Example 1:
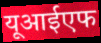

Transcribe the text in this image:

यूआईएफ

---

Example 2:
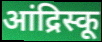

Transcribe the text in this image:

आंद्रिस्कू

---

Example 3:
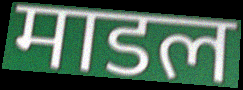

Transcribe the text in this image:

माडल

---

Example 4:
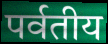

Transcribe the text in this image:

पर्वतीय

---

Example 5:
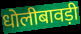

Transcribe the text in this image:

धोलीबावड़ी